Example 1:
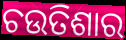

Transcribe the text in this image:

ଚଉତିଶାର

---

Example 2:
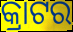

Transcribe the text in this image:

କ୍ରାଟର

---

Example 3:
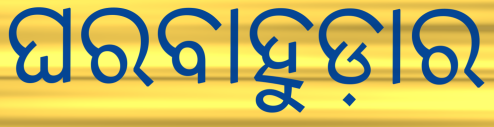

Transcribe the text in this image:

ଘରବାହୁଡ଼ାର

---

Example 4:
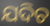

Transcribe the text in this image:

ଯଦିଚ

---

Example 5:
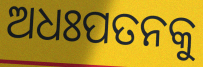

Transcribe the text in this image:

ଅଧଃପତନକୁ